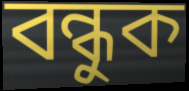
বন্ধুক